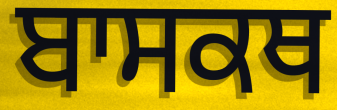
ਬਾਸਕਥ